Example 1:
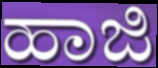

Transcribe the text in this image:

ಹಾಜಿ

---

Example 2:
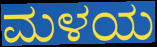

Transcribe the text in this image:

ಮಳಯ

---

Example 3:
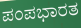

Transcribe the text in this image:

ಪಂಪಭಾರತ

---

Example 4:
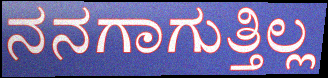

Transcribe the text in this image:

ನನಗಾಗುತ್ತಿಲ್ಲ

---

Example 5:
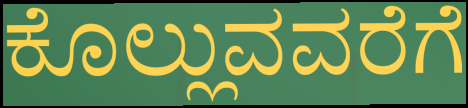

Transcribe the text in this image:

ಕೊಲ್ಲುವವರೆಗೆ